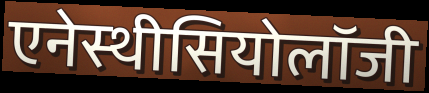
एनेस्थीसियोलॉजी